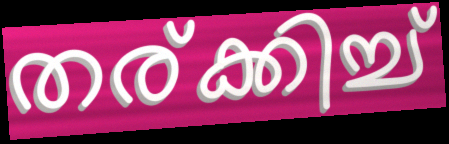
തര്ക്കിച്ച്